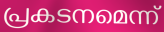
പ്രകടനമെന്ന്